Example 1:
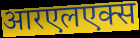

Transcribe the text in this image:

आरएलएक्स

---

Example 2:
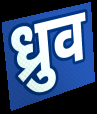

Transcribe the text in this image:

ध्रुव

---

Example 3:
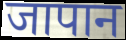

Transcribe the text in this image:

जापान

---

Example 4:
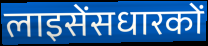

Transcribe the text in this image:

लाइसेंसधारकों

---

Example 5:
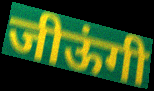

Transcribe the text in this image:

जीऊंगी